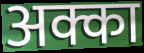
अक्का